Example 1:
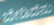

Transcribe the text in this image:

ಬೇಡಿದೆನು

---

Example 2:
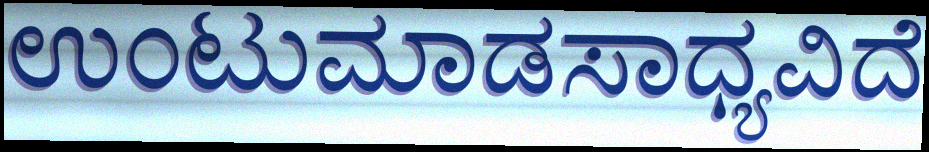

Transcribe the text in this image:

ಉಂಟುಮಾಡಸಾಧ್ಯವಿದೆ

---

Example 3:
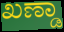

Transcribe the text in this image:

ಖಣ್ಡಾ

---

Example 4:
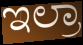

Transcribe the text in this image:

ಇಲ್ರಾ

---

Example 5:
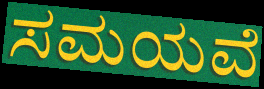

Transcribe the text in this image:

ಸಮಯವೆ